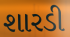
શારડી